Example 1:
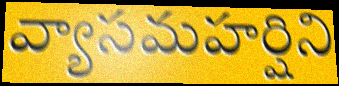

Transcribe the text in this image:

వ్యాసమహర్షిని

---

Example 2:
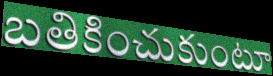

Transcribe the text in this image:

బతికించుకుంటూ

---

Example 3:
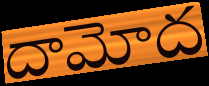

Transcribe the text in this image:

దామోద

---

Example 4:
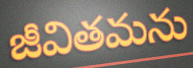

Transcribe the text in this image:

జీవితమను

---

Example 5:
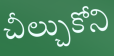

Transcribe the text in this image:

చీల్చుకోని